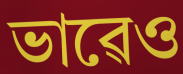
ভাৱেও